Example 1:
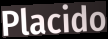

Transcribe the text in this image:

Placido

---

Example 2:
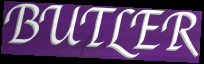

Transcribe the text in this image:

BUTLER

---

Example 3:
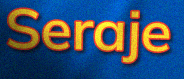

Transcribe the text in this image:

Seraje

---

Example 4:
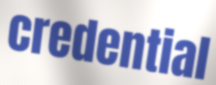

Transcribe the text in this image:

credential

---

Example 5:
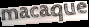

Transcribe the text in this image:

macaque